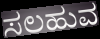
ಸಲಹುವ